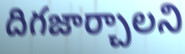
దిగజార్చాలని